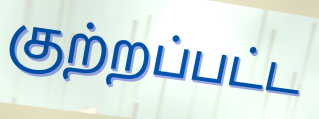
குற்றப்பட்ட